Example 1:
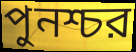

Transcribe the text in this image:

পুনশ্চর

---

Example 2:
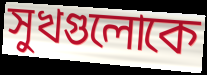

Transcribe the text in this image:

সুখগুলোকে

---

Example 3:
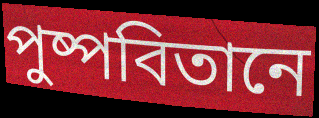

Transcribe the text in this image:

পুষ্পবিতানে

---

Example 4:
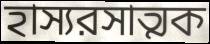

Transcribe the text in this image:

হাস্যরসাত্মক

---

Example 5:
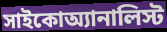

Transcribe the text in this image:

সাইকোঅ্যানালিস্ট